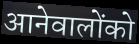
आनेवालोंको